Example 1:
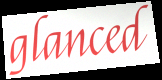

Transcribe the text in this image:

glanced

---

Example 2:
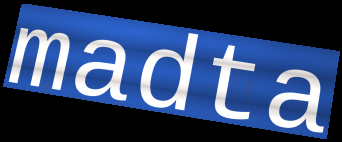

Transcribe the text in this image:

madta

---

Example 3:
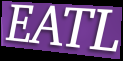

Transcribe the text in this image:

EATL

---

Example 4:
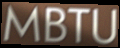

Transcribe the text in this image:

MBTU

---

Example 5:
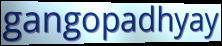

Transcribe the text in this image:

gangopadhyay